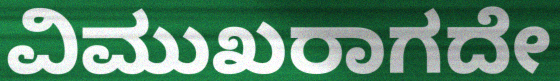
ವಿಮುಖರಾಗದೇ